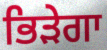
ਭਿੜੇਗਾ